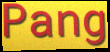
Pang